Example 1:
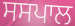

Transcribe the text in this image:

ਸਸਪਾਲ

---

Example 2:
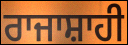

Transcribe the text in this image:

ਰਾਜਾਸ਼ਾਹੀ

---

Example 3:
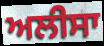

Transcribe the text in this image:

ਅਲੀਸਾ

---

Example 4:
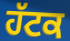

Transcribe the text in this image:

ਹੱਟਕ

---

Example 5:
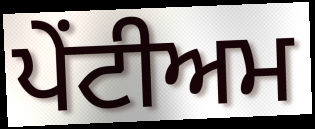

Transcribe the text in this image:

ਪੇਂਟੀਅਮ